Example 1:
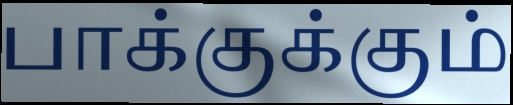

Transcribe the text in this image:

பாக்குக்கும்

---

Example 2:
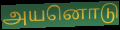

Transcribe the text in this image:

அயனொடு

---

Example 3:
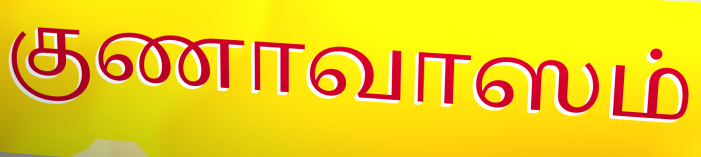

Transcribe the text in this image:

குணாவாஸம்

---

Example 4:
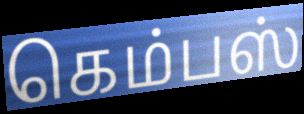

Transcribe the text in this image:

கெம்பஸ்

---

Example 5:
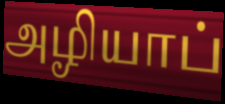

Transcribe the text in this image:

அழியாப்